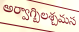
అర్వాగ్బిలశ్చమస